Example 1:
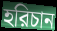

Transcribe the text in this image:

হরিচান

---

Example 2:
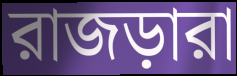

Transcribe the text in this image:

রাজড়ারা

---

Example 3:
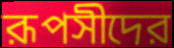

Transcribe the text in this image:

রূপসীদের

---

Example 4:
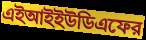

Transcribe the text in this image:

এইআইইউডিএফের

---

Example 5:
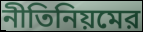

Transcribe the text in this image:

নীতিনিয়মের